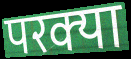
परक्या